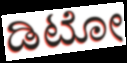
ಡಿಟೋ